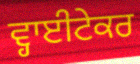
ਵ੍ਹਾਈਟੇਕਰ